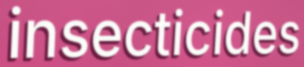
insecticides